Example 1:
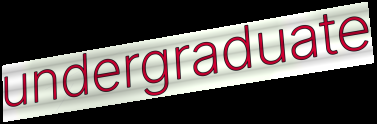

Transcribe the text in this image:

undergraduate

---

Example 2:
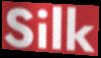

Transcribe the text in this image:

Silk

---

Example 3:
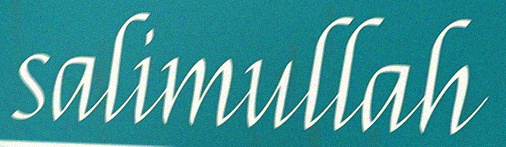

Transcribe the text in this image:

salimullah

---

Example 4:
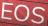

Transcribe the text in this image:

EOS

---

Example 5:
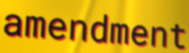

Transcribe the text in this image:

amendment